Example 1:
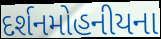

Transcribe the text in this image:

દર્શનમોહનીયના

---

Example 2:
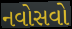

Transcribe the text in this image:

નવોસવો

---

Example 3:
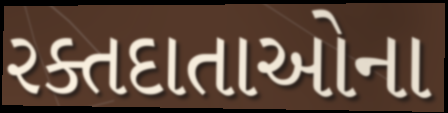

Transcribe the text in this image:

રક્તદાતાઓના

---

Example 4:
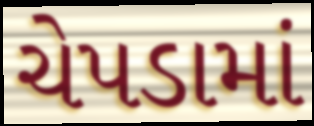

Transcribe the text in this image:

ચેપડામાં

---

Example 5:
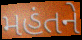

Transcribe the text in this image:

મહંતને